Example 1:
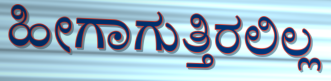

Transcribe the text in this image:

ಹೀಗಾಗುತ್ತಿರಲಿಲ್ಲ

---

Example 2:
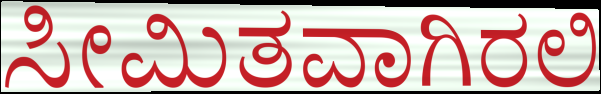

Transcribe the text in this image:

ಸೀಮಿತವಾಗಿರಲಿ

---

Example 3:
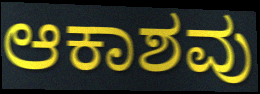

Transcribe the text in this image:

ಆಕಾಶವು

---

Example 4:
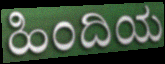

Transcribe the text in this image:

ಹಿಂದಿಯ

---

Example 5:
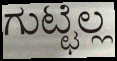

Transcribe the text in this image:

ಗುಟ್ಟೆಲ್ಲ